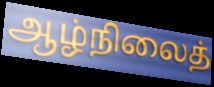
ஆழ்நிலைத்